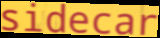
sidecar